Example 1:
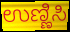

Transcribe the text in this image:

ಉಣ್ಣಿಸಿ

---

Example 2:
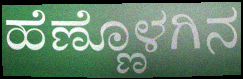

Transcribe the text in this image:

ಹೆಣ್ಣೊಳಗಿನ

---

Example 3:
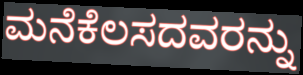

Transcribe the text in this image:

ಮನೆಕೆಲಸದವರನ್ನು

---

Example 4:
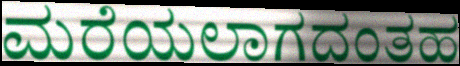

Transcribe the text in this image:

ಮರೆಯಲಾಗದಂತಹ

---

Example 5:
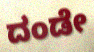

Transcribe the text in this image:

ದಂಡೇ